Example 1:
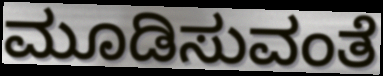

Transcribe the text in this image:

ಮೂಡಿಸುವಂತೆ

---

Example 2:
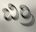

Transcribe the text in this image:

ಬಿರ್ರಿ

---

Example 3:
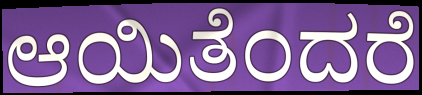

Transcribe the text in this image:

ಆಯಿತೆಂದರೆ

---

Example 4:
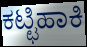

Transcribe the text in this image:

ಕಟ್ಟಿಹಾಕಿ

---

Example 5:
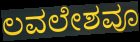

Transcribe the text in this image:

ಲವಲೇಶವೂ